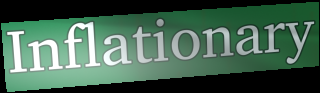
Inflationary